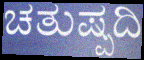
ಚತುಷ್ಪದಿ